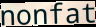
nonfat